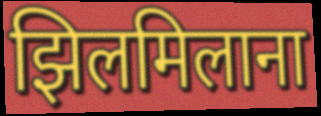
झिलमिलाना